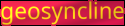
geosyncline